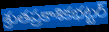
శ్రుతప్రకాశికభట్టర్